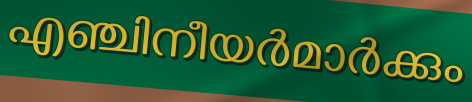
എഞ്ചിനീയർമാർക്കും